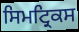
ਸਿਮਟ੍ਰਿਕਸ